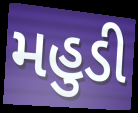
મહુડી